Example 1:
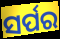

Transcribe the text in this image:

ସର୍ପର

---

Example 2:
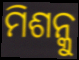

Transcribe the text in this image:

ମିଶନ୍କୁ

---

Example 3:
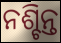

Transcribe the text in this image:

ନଶ୍ଚିନ୍ତ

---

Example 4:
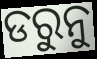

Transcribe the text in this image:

ଡରୁନୁ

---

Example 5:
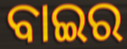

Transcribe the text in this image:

ବାଇର